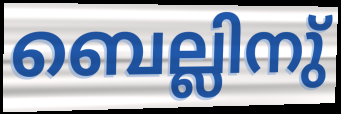
ബെല്ലിനു്